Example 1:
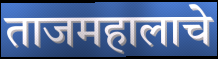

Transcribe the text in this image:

ताजमहालाचे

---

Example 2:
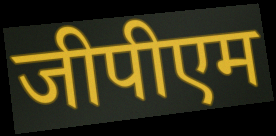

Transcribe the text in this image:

जीपीएम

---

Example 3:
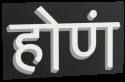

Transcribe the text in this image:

होणं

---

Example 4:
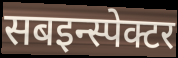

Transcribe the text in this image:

सबइन्स्पेक्टर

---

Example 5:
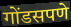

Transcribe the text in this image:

गोंडसपणे